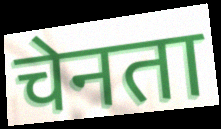
चेनता